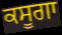
ਕਸੂਗਾ